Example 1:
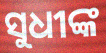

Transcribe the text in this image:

ସୁଧୀଙ୍କ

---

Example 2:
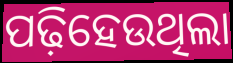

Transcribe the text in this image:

ପଢ଼ିହେଉଥିଲା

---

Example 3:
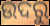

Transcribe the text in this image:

ଉଦରୁ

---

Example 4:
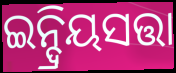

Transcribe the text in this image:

ଇନ୍ଦ୍ରିୟସତ୍ତା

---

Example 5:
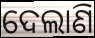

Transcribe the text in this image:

ଦେଲାଣି